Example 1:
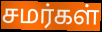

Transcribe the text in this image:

சமர்கள்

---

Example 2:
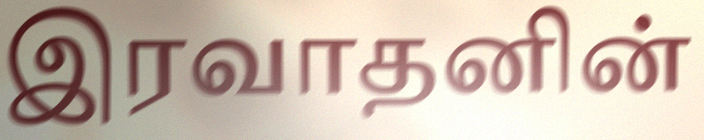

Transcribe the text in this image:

இரவாதனின்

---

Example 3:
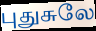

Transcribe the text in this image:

புதுசுலே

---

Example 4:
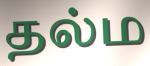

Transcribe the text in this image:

தல்ம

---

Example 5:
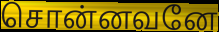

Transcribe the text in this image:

சொன்னவனே